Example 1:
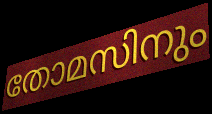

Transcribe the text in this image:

തോമസിനും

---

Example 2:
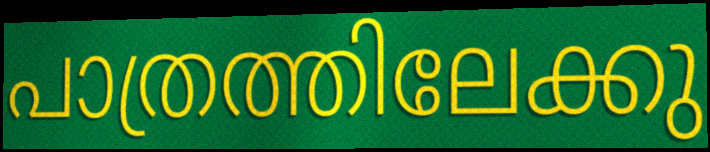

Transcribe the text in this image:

പാത്രത്തിലേക്കു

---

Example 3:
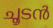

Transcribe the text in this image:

ചൂടൻ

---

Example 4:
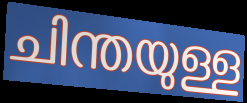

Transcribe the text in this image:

ചിന്തയുള്ള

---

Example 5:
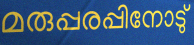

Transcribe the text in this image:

മരുപ്പരപ്പിനോടു്